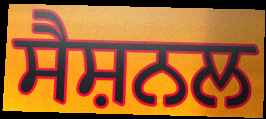
ਸੈਸ਼ਨਲ